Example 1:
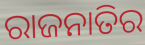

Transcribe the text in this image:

ରାଜନାତିର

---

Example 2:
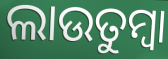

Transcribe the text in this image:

ଲାଉତୁମ୍ବା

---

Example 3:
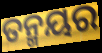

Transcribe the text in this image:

ତନ୍ମୟର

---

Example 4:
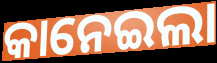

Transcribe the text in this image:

କାନେଇଲା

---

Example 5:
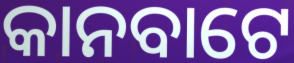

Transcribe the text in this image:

କାନବାଟେ